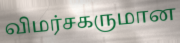
விமர்சகருமான